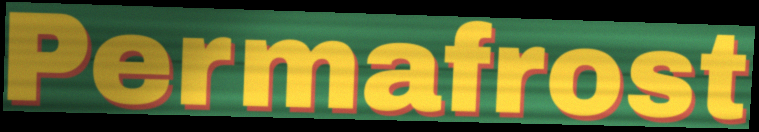
Permafrost